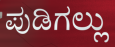
ಪುಡಿಗಲ್ಲು